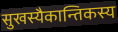
सुखस्यैकान्तिकस्य